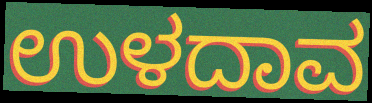
ಉಳದಾವ